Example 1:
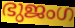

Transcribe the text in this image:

ഭുജംഗ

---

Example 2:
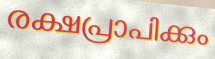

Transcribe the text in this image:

രക്ഷപ്രാപിക്കും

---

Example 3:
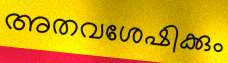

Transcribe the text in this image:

അതവശേഷിക്കും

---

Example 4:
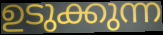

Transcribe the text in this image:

ഉടുക്കുന്ന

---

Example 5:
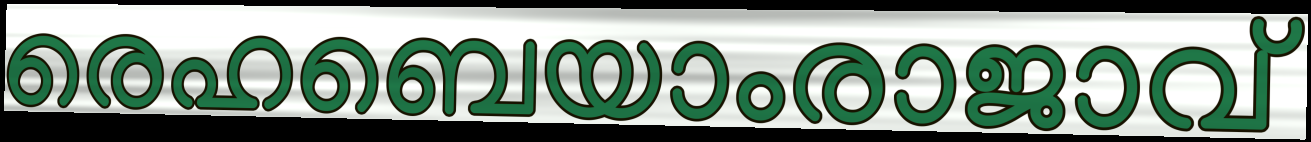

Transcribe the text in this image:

രെഹബെയാംരാജാവ്